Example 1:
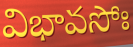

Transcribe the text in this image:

విభావసోః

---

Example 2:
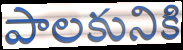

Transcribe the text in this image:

పాలకునికి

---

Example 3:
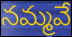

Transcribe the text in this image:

నమ్మవే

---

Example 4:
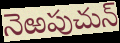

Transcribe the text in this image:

నెఱపుచున్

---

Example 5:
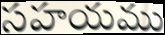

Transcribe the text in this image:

సహయము